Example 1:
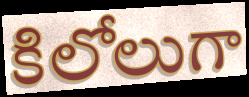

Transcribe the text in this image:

కిలోలుగా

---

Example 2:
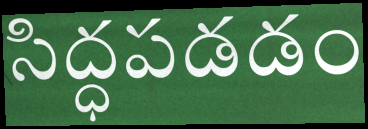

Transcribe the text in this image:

సిద్ధపడడం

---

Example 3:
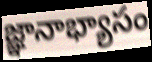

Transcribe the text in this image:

జ్ఞానాభ్యాసం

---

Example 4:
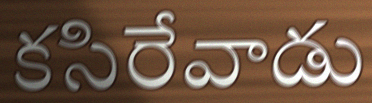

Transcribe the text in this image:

కసిరేవాడు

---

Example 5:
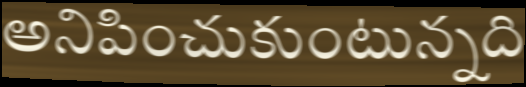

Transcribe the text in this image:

అనిపించుకుంటున్నది